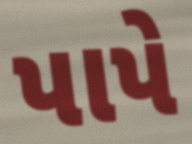
પાપે